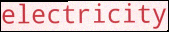
electricity